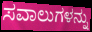
ಸವಾಲುಗಳನ್ನು